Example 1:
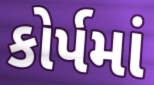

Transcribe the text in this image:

કોર્પમાં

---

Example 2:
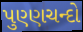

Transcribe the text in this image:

પુણ્ણચન્દો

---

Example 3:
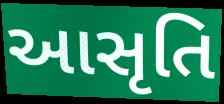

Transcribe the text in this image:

આસૃતિ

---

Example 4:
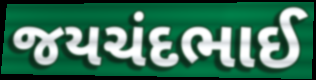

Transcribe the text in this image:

જયચંદભાઈ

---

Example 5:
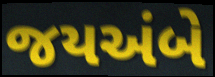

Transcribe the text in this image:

જયઅંબે